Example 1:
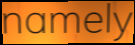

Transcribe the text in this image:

namely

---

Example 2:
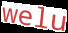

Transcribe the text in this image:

welu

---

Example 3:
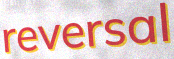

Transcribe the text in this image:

reversal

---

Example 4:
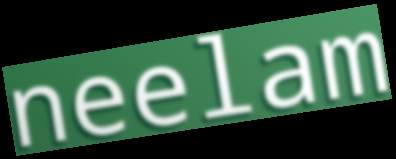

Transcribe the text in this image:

neelam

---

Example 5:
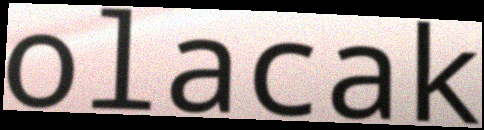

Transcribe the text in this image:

olacak